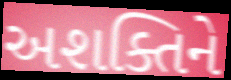
અશક્તિને